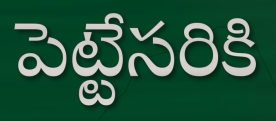
పెట్టేసరికి